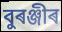
বুৰঞ্জীৰ